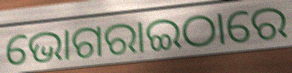
ଭୋଗରାଇଠାରେ